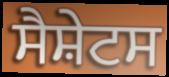
ਸੈਸ਼ੇਟਸ